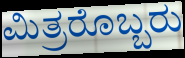
ಮಿತ್ರರೊಬ್ಬರು